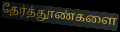
தேர்த்தூண்களை